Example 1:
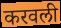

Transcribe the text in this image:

करवली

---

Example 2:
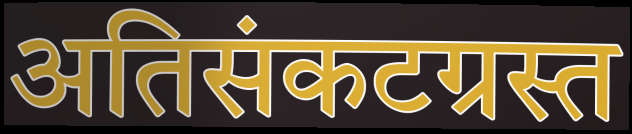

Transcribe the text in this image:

अतिसंकटग्रस्त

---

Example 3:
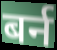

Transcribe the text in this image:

बर्न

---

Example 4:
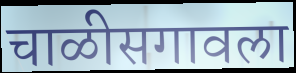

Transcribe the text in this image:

चाळीसगावला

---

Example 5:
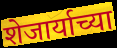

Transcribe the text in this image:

शेजार्याच्या